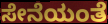
ಸೇನೆಯಂತೆ